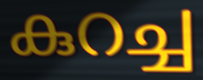
കുറച്ച